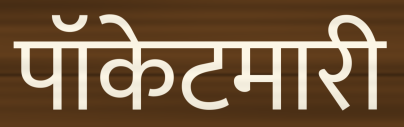
पॉकेटमारी